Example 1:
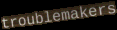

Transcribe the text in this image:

troublemakers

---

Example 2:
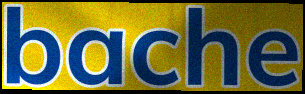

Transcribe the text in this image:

bache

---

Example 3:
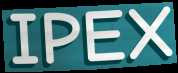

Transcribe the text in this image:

IPEX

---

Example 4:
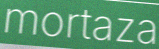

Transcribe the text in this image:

mortaza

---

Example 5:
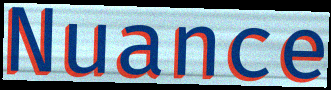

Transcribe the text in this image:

Nuance